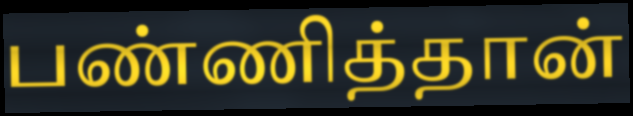
பண்ணித்தான்